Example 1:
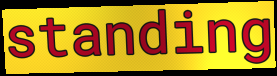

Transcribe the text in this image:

standing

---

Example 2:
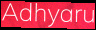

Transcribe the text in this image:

Adhyaru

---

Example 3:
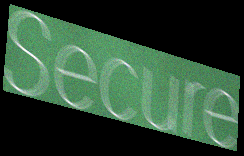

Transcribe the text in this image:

Secure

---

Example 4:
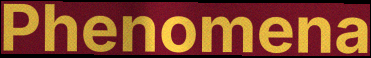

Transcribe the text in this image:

Phenomena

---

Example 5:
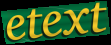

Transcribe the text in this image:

etext